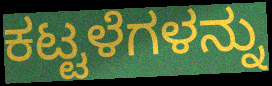
ಕಟ್ಟಳೆಗಳನ್ನು